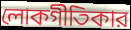
লোকগীতিকার